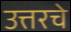
उत्तरचे